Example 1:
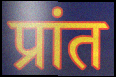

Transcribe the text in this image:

प्रांत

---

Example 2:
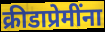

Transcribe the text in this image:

क्रीडाप्रेमींना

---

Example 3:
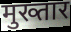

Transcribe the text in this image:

मुख्तार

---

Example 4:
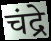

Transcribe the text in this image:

चंद्रे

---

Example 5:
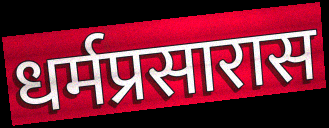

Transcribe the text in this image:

धर्मप्रसारास